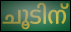
ചൂടിന്